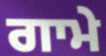
ਗਾਮੇ